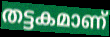
തട്ടകമാണ്